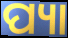
ପ୍ୟା